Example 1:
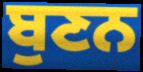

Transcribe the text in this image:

ਬੁਣਨ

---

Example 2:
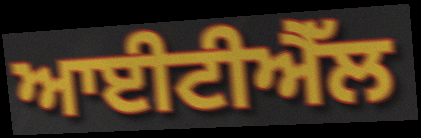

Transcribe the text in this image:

ਆਈਟੀਐੱਲ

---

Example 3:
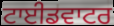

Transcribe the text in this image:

ਟਾਈਡਵਾਟਰ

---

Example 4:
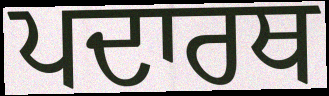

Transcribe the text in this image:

ਪਦਾਰਥ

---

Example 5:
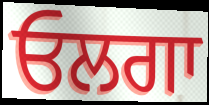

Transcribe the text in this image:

ਓਲਗਾ